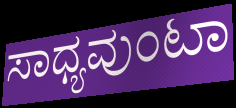
ಸಾಧ್ಯವುಂಟಾ